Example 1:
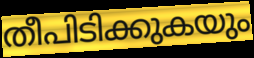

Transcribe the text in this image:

തീപിടിക്കുകയും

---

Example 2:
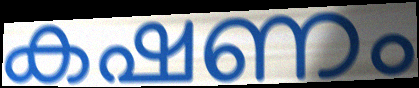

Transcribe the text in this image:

കഷണം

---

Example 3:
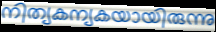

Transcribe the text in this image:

നിത്യകന്യകയായിരുന്നു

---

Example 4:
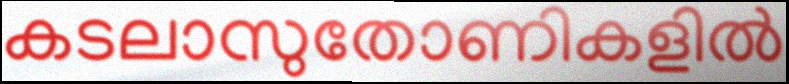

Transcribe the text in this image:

കടലാസുതോണികളിൽ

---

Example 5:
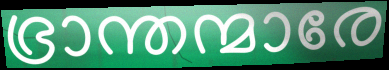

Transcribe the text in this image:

ഭ്രാന്തന്മാരേ